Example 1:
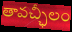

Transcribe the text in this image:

తావచ్ఛీలం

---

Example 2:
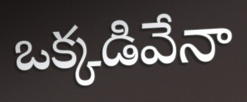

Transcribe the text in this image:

ఒక్కడివేనా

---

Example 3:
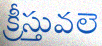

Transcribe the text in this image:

క్రీస్తువలె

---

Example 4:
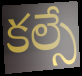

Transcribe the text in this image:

కల్సే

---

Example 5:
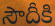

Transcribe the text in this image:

సౌదీకి